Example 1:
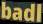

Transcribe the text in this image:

badl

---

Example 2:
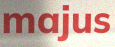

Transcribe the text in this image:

majus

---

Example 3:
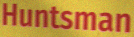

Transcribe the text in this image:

Huntsman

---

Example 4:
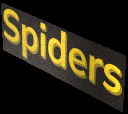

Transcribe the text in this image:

Spiders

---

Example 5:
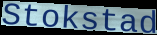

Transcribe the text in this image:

Stokstad